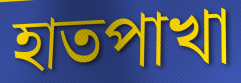
হাতপাখা